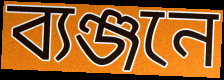
ব্যঞ্জনে